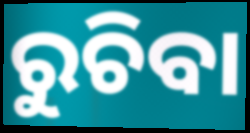
ରୁଚିବା